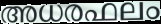
അധരഫലം